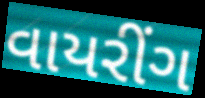
વાયરીંગ